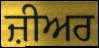
ਜ਼ੀਅਰ